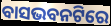
ବାସଭବନଟିରେ